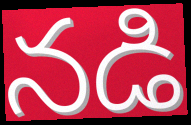
నడి